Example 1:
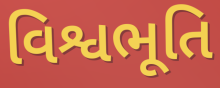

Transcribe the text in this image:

વિશ્વભૂતિ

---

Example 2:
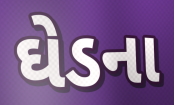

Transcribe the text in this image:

ઘેડના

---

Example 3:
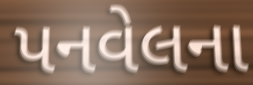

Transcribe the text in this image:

પનવેલના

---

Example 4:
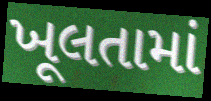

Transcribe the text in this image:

ખૂલતામાં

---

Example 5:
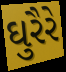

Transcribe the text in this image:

ઘુરૈરે